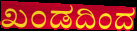
ಖಂಡದಿಂದ